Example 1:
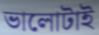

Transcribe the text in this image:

ভালোটাই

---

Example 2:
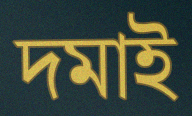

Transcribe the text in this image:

দমাই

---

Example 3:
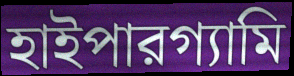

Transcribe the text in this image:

হাইপারগ্যামি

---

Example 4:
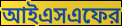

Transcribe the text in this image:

আইএসএফের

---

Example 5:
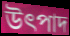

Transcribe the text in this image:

উৎপাদ